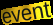
event